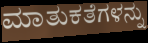
ಮಾತುಕತೆಗಳನ್ನು